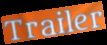
Trailer